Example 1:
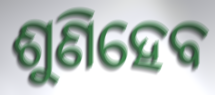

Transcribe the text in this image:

ଶୁଣିହେବ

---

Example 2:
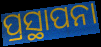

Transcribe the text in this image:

ପ୍ରସ୍ଥାପନା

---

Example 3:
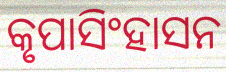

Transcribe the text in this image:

କୃପାସିଂହାସନ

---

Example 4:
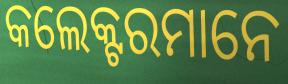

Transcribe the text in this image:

କଲେକ୍ଟରମାନେ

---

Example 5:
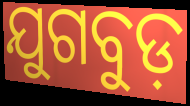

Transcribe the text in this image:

ଯୁଗବୁଡ଼